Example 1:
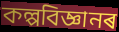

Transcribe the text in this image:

কল্পবিজ্ঞানৰ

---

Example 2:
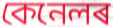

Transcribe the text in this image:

কেনেলৰ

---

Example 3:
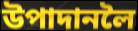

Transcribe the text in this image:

উপাদানলৈ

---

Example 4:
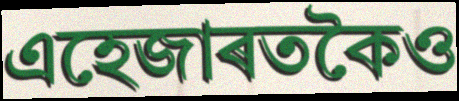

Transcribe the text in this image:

এহেজাৰতকৈও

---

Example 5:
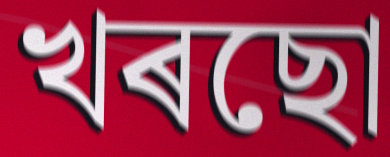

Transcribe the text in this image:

খৰছো